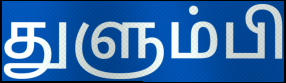
துளும்பி